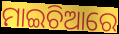
ମାଇଚିଆରେ